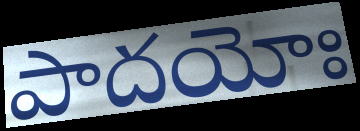
పాదయోః